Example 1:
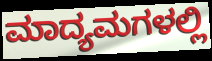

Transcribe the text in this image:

ಮಾದ್ಯಮಗಳಲ್ಲಿ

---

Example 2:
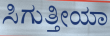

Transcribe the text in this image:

ಸಿಗುತ್ತೀಯಾ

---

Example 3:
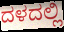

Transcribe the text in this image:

ದಳದಲ್ಲಿ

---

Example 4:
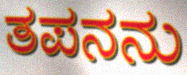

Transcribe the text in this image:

ತಪನನು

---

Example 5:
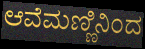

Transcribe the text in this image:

ಆವೆಮಣ್ಣಿನಿಂದ